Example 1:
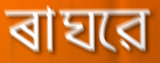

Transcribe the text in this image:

ৰাঘৱে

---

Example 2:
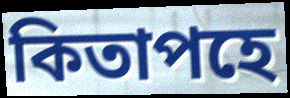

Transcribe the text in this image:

কিতাপহে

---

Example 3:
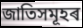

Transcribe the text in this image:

জাতিসমূহৰ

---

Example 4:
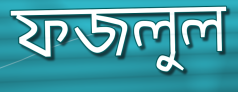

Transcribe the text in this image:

ফজলুল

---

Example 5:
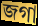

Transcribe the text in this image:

জগা